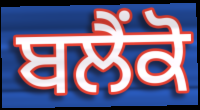
ਬਲੈਂਕੋ